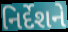
નિર્દેશને